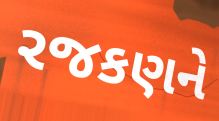
રજકણને